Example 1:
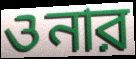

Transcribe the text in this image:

ওনার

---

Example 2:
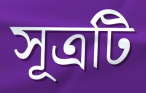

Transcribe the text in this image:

সূত্রটি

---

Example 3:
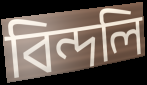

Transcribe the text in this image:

বিন্দলি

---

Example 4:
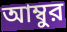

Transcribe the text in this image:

আম্বুর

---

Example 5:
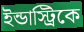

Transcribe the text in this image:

ইন্ডাস্ট্রিকে